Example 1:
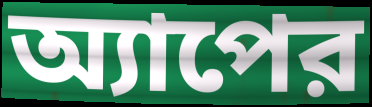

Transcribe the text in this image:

অ্যাপের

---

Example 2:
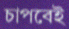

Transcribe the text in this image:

চাপবেই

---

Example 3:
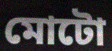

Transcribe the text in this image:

মোটো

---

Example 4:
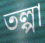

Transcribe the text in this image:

তল্পা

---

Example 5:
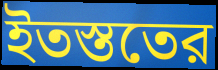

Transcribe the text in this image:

ইতস্ততের